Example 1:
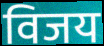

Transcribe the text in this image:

विजय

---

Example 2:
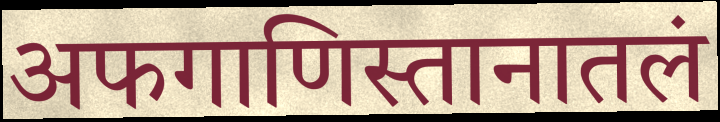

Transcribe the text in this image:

अफगाणिस्तानातलं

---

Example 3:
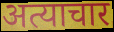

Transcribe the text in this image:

अत्याचार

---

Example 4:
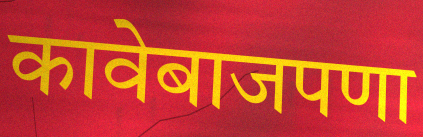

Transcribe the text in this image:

कावेबाजपणा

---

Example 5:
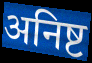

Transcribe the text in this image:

अनिष्ट